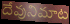
దేవునిమాట